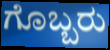
ಗೊಬ್ಬರು